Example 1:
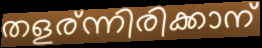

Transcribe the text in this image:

തളര്ന്നിരിക്കാന്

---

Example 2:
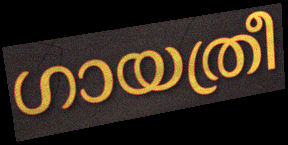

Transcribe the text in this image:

ഗായത്രീ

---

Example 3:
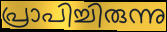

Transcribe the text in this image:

പ്രാപിച്ചിരുന്നു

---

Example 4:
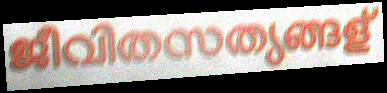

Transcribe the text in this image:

ജീവിതസത്യങ്ങള്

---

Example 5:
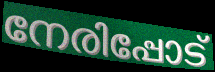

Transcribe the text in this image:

നേരിപ്പോട്